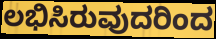
ಲಭಿಸಿರುವುದರಿಂದ